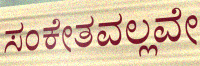
ಸಂಕೇತವಲ್ಲವೇ